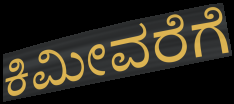
ಕಿಮೀವರೆಗೆ